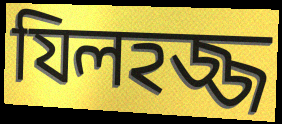
যিলহজ্জ